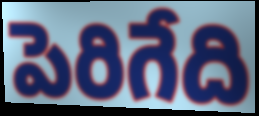
పెరిగేది